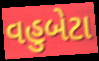
વહુબેટા